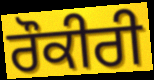
ਰੌਕੀਰੀ